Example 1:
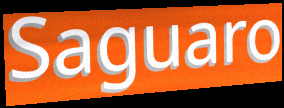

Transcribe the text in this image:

Saguaro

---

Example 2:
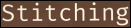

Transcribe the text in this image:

Stitching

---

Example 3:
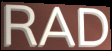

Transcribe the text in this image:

RAD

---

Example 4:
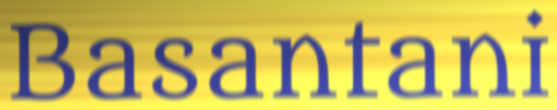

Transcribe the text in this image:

Basantani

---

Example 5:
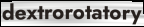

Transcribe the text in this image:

dextrorotatory